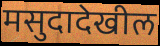
मसुदादेखील